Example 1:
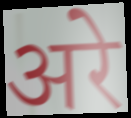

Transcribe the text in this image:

अरे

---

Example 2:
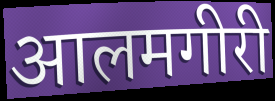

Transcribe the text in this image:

आलमगीरी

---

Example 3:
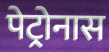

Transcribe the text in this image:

पेट्रोनास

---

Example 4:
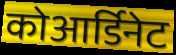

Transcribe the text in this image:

कोआर्डिनेट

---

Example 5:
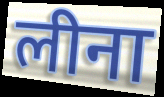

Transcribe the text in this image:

लीना